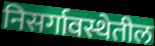
निसर्गावस्थेतील